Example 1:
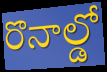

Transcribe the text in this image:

రొనాల్డో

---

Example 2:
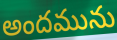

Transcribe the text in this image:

అందమును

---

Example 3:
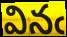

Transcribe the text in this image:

వినఁ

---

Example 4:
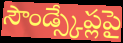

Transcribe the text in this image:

సౌండ్స్కేప్లపై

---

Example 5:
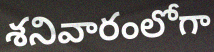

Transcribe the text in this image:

శనివారంలోగా